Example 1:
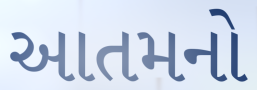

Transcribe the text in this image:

આતમનો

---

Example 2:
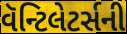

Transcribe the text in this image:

વૅન્ટિલેટર્સની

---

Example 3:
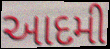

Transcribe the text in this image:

આદમી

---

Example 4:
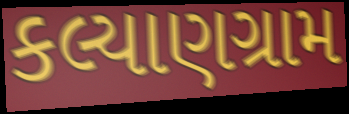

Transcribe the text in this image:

કલ્યાણગ્રામ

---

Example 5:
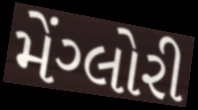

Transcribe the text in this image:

મેંગ્લોરી